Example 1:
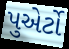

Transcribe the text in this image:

પુએર્ટો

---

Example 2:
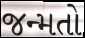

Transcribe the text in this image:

જન્મતો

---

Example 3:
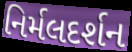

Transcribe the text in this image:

નિર્મલદર્શન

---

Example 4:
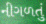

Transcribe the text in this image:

નીગળતું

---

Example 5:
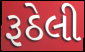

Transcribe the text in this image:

રૂઠેલી